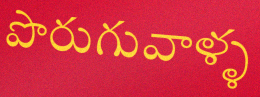
పొరుగువాళ్ళ